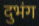
दुभंग